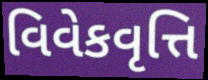
વિવેકવૃત્તિ